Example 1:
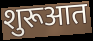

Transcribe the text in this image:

शुरूआत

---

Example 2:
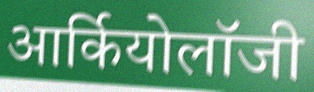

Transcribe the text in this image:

आर्कियोलॉजी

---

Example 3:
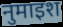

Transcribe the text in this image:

नुमाइश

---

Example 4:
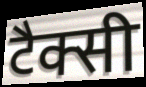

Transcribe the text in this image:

टैक्सी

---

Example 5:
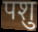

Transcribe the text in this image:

पशु